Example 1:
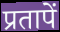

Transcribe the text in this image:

प्रतापें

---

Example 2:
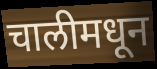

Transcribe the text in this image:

चालीमधून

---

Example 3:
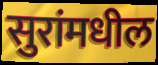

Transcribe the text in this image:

सुरांमधील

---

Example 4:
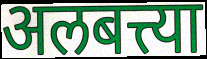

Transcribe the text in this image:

अलबत्त्या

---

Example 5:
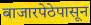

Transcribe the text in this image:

बाजारपेठेपासून